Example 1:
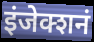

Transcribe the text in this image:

इंजेक्शनं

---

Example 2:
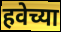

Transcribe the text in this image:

हवेच्या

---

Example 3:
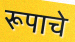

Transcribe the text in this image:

रूपाचे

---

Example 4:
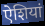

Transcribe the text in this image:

ऐशियां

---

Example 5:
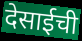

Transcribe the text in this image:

देसाईची